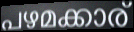
പഴമക്കാര്